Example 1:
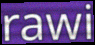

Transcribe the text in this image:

rawi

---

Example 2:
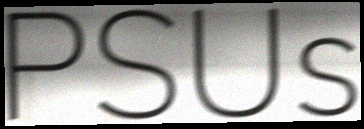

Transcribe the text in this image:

PSUs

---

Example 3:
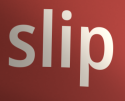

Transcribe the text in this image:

slip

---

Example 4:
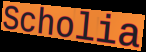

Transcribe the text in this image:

Scholia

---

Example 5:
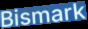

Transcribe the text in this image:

Bismark